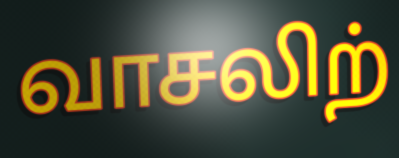
வாசலிற்